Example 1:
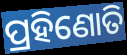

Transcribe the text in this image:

ପ୍ରହିଣୋତି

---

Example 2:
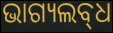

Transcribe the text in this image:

ଭାଗ୍ୟଲବ୍‌ଧ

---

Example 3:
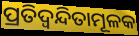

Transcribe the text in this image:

ପ୍ରତିଦ୍ୱନ୍ଦିତାମୂଳକ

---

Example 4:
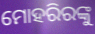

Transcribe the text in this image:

ମୋହରିରଙ୍କୁ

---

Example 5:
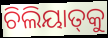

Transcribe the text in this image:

ଚିଲିୟାତ୍‍କୁ